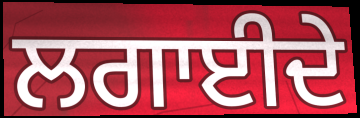
ਲਗਾਈਦੇ